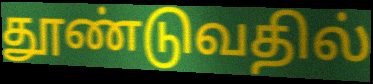
தூண்டுவதில்